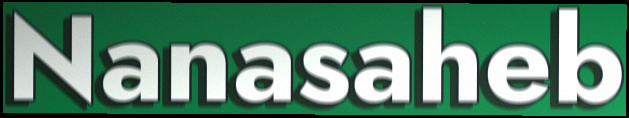
Nanasaheb